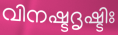
വിനഷ്ടദൃഷ്ടിഃ